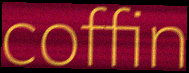
coffin